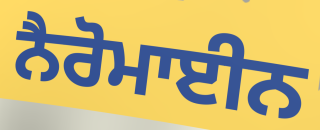
ਨੈਰੋਮਾਈਨ